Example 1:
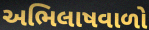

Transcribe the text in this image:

અભિલાષવાળો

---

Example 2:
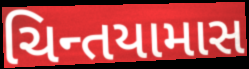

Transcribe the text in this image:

ચિન્તયામાસ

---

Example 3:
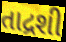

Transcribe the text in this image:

તાદ્રશી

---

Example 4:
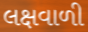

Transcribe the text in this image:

લક્ષવાળી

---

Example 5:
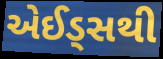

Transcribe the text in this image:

એઈડ્સથી